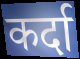
कर्दा